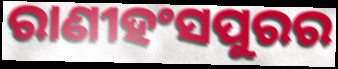
ରାଣୀହଂସପୁରର